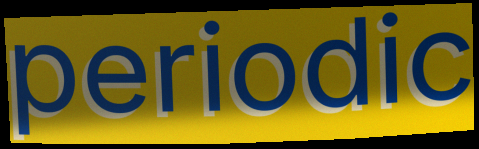
periodic